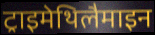
ट्राइमेथिलैमाइन